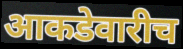
आकडेवारीच